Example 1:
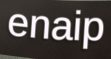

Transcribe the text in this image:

enaip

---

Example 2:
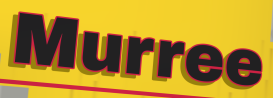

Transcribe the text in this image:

Murree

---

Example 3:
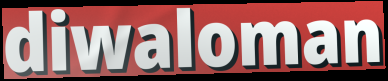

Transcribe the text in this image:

diwaloman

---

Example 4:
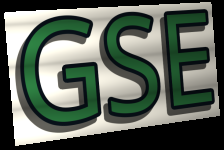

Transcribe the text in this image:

GSE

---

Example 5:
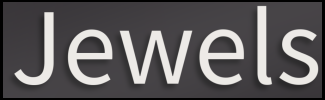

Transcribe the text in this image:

Jewels